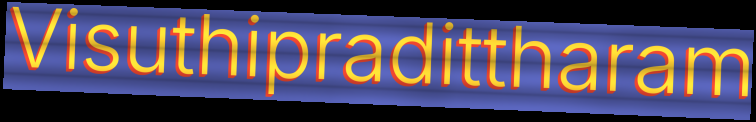
Visuthipradittharam